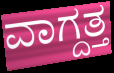
ವಾಗ್ದತ್ತ